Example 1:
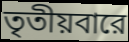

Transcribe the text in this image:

তৃতীয়বারে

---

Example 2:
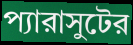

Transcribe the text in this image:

প্যারাসুটের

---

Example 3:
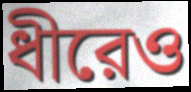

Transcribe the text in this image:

ধীরেও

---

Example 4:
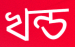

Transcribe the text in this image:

খন্ড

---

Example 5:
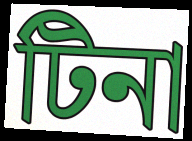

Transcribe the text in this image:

টিনা